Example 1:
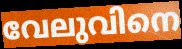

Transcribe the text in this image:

വേലുവിനെ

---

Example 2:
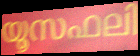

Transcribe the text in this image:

യൂസഫലി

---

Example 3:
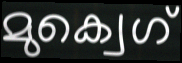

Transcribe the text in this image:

മുക്വെഗ്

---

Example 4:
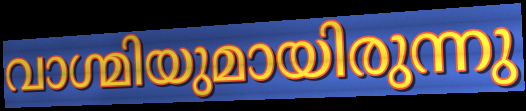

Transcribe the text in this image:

വാഗ്മിയുമായിരുന്നു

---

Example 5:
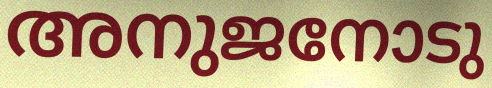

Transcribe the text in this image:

അനുജനോടു